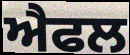
ਐਫਲ